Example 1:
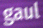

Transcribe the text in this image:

gaul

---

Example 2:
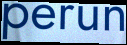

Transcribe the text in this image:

perun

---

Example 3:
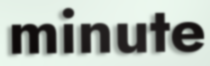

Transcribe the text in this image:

minute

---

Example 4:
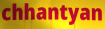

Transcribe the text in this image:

chhantyan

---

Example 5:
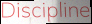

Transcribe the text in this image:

Discipline